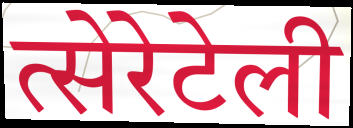
त्सेरेटेली